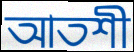
আতশী